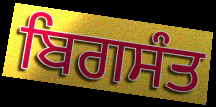
ਬਿਗਸੰਤ